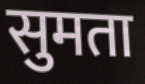
सुमता